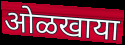
ओळखाया